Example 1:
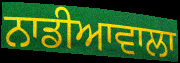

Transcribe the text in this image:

ਨਾਡੀਆਵਾਲਾ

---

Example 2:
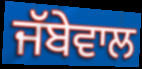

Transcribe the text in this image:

ਜੱਬੇਵਾਲ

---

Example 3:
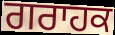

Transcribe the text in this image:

ਗਰਾਹਕ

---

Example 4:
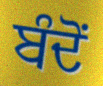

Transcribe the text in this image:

ਬੰਦੋਂ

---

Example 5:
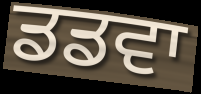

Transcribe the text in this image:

ਡਡਵਾ